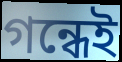
গন্ধেই